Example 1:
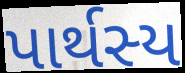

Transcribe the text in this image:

પાર્થસ્ય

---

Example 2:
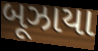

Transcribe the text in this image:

બૂઝાયા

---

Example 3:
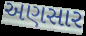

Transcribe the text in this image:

અણસાર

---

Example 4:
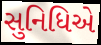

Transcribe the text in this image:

સુનિધિએ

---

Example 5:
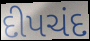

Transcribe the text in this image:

દીપચંદ